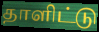
தாளிட்டு